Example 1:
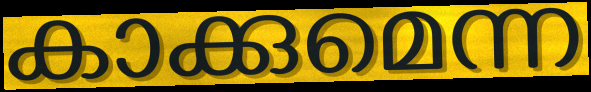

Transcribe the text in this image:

കാക്കുമെന്ന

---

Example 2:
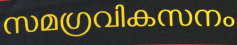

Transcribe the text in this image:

സമഗ്രവികസനം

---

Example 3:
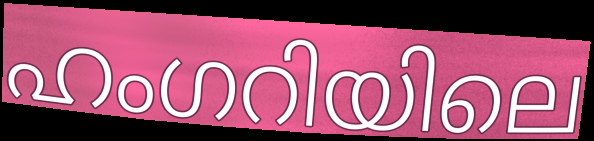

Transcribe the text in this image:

ഹംഗറിയിലെ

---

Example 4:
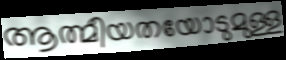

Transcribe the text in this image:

ആത്മീയതയോടുമുള്ള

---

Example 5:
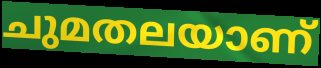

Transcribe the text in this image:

ചുമതലയാണ്